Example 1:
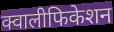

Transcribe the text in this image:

क्वालीफिकेशन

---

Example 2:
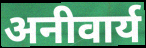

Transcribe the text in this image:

अनीवार्य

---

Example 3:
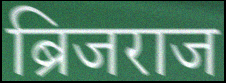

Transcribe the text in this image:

ब्रिजराज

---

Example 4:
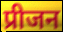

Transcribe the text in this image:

प्रीजन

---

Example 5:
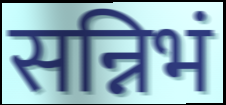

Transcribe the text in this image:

सन्निभं